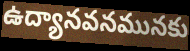
ఉద్యానవనమునకు